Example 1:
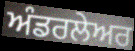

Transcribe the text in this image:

ਅੰਡਰਲੇਅਰ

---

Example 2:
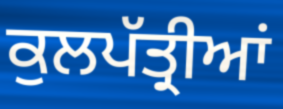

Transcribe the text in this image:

ਕੁਲਪੱਤ੍ਰੀਆਂ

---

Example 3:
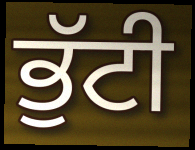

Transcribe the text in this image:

ਭੁੱਟੀ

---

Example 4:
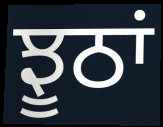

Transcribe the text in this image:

ਝੂਠਾਂ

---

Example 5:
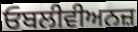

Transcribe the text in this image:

ਓਬਲੀਵੀਅਨਜ਼